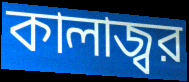
কালাজ্বর